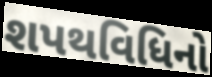
શપથવિધિનો